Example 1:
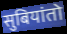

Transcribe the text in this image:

सुबियांतो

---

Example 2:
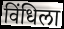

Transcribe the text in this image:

विंधिला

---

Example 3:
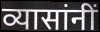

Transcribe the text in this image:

व्यासांनीं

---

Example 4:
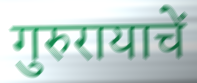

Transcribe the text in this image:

गुरुरायाचें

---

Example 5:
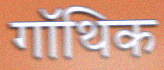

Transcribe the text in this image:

गॉथिक